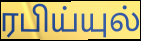
ரபிய்யுல்